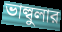
ভাল্বুলার